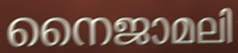
നൈജാമലി